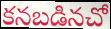
కనబడినచో